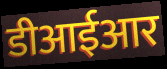
डीआईआर